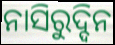
ନାସିରୁଦ୍ଦିନ